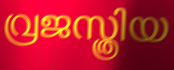
വ്രജസ്ത്രിയ